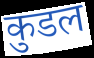
कुडल